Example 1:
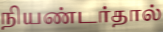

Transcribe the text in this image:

நியண்டர்தால்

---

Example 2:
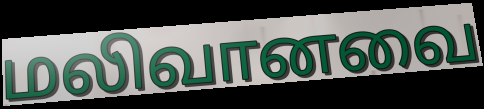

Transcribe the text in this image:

மலிவானவை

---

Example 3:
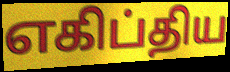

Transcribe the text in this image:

எகிப்திய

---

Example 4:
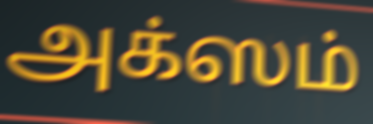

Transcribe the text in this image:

அக்ஸம்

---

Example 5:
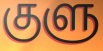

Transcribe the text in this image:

குளு